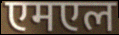
एमएल